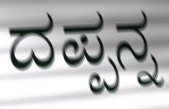
ದಪ್ಪನ್ನ